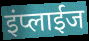
इंप्लाईज